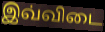
இவ்விடை